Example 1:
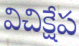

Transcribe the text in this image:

విచిక్షేప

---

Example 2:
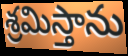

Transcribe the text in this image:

శ్రమిస్తాను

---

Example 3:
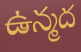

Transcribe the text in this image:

ఉన్మద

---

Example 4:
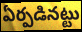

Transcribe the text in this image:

ఏర్పడినట్టు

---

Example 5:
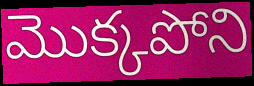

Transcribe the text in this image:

మొక్కపోని